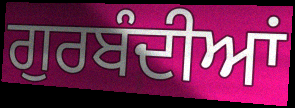
ਗੁਰਬੰਦੀਆਂ